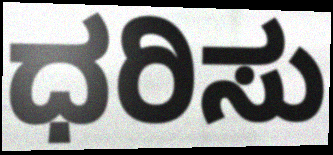
ಧರಿಸು